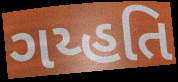
ગય્હતિ